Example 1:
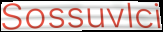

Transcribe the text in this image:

Sossuvlci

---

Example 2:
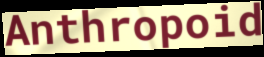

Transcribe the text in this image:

Anthropoid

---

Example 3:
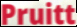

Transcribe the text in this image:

Pruitt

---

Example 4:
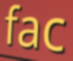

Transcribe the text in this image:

fac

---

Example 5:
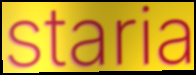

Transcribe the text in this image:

staria